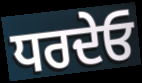
ਧਰਦੇਓ